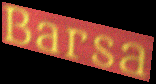
Barsa